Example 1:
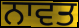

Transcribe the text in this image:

ਨਾਵਤ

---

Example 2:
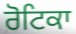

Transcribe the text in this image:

ਰੋਟਿਕਾ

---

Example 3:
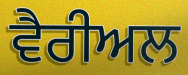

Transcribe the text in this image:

ਵੈਰੀਅਲ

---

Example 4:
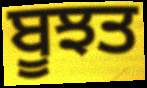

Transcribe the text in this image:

ਬੂਝਤ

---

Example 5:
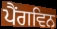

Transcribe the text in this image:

ਪੈਂਗਵਿਨ